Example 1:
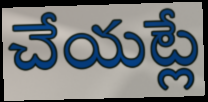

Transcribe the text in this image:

చేయట్లే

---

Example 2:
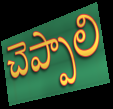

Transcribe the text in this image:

చెప్పాలి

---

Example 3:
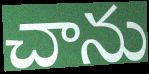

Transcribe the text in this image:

చాను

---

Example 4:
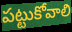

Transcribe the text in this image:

పట్టుకోవాలి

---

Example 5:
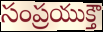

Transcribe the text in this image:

సంప్రయుక్తౌ